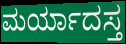
ಮರ್ಯಾದಸ್ತ